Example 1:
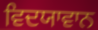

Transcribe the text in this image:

ਵਿਦਯਾਵਾਨ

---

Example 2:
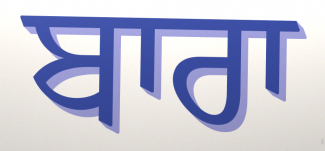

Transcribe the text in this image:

ਬਾਰਾ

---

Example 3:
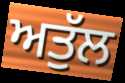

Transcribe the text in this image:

ਅਤੁੱਲ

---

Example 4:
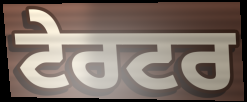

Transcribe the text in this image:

ਟੇਰਟਰ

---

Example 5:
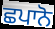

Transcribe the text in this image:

ਛਪਾਨੋ